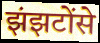
झंझटोंसे